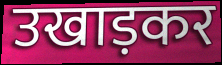
उखाड़कर